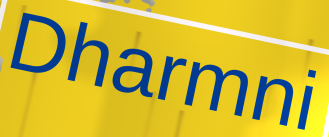
Dharmni